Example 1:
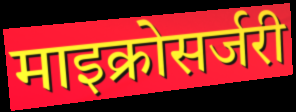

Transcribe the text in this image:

माइक्रोसर्जरी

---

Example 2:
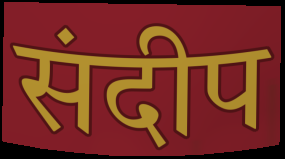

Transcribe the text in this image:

संदीप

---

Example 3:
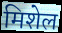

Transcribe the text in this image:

मिशेल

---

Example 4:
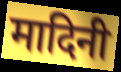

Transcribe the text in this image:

मादिनी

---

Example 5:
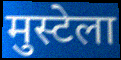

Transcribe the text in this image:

मुस्टेला